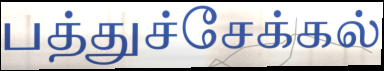
பத்துச்சேக்கல்